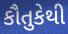
કૌતુકેથી